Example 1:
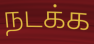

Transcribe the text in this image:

நடக்க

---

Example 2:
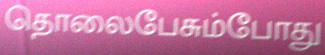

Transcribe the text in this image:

தொலைபேசும்போது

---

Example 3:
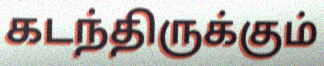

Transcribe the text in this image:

கடந்திருக்கும்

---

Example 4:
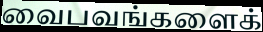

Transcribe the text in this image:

வைபவங்களைக்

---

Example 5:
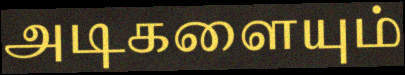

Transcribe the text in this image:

அடிகளையும்